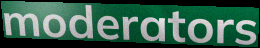
moderators